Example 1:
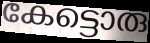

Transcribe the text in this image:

കേട്ടൊരു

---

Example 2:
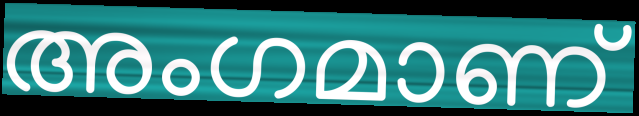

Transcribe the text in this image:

അംഗമാണ്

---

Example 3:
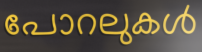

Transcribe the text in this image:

പോറലുകൾ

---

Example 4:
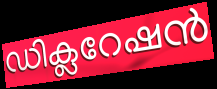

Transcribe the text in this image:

ഡിക്ലറേഷൻ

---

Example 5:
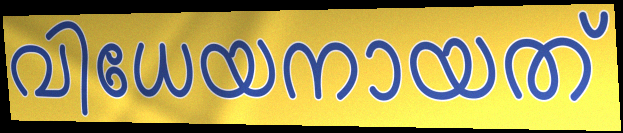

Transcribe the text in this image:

വിധേയനായത്